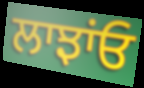
ਲਾਝਾਂਓ